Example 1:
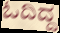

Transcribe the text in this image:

ಓದಿದ್ದ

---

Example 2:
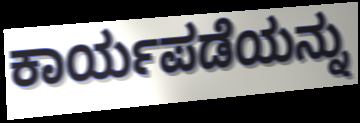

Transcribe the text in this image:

ಕಾರ್ಯಪಡೆಯನ್ನು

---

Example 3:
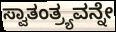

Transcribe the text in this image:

ಸ್ವಾತಂತ್ರ್ಯವನ್ನೇ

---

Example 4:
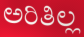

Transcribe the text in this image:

ಅರಿತಿಲ್ಲ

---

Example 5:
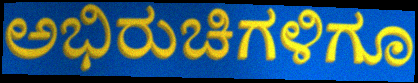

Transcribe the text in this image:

ಅಭಿರುಚಿಗಳಿಗೂ